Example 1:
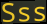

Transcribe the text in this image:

Sss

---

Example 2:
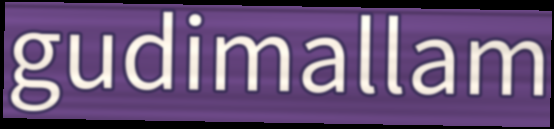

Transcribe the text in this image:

gudimallam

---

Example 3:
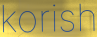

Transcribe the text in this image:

korish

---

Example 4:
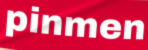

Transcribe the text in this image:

pinmen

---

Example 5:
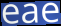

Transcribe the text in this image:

eae